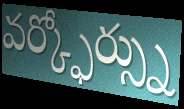
వర్క్ఫోర్స్ను